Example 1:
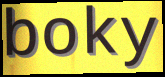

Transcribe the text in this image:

boky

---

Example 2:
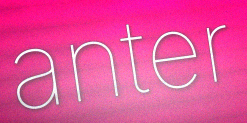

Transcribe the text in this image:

anter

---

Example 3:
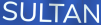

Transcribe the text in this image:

SULTAN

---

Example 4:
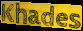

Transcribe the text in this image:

Khades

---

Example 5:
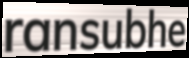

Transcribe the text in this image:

ransubhe